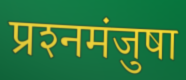
प्रश्नमंजुषा